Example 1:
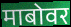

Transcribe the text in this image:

माबोवर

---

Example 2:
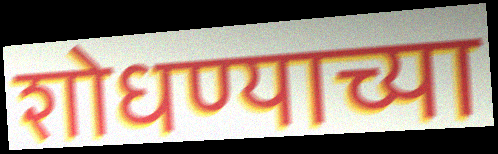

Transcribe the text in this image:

शोधण्याच्या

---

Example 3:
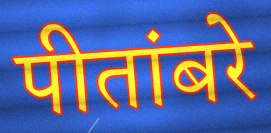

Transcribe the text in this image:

पीतांबरे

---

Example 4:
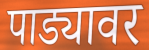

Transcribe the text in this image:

पाड्यावर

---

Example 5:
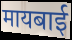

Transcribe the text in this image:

मायबाई